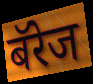
बॅरेज